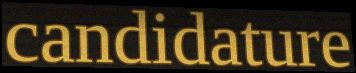
candidature